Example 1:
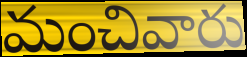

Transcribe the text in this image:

మంచివారు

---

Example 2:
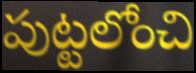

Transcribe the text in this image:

పుట్టలోంచి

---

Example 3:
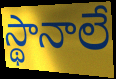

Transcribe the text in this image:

స్థానాలే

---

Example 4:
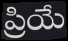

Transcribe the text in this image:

ప్రియే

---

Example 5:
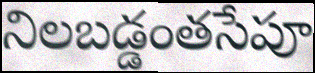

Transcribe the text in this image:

నిలబడ్డంతసేపూ